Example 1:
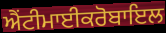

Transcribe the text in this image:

ਐਂਟੀਮਾਈਕਰੋਬਾਇਲ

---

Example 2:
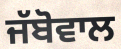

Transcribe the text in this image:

ਜੱਬੋਵਾਲ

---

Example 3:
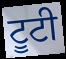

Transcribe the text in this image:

ਟੂਟੀ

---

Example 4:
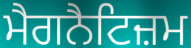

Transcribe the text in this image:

ਮੈਗਨੈਟਿਜ਼ਮ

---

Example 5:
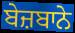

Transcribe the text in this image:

ਬੇਜ਼ਬਾਨੇ